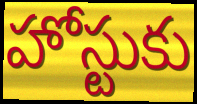
హోస్టుకు